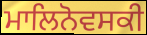
ਮਾਲਿਨੋਵਸਕੀ